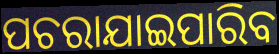
ପଚରାଯାଇପାରିବ